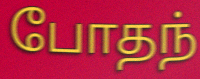
போதந்